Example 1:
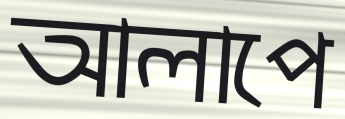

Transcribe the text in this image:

আলাপে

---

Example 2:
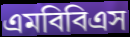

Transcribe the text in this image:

এমবিবিএস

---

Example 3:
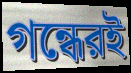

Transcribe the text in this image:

গন্ধেরই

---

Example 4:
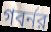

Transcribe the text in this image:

গবর্নর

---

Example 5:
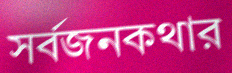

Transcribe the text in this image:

সর্বজনকথার